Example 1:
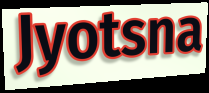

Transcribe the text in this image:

Jyotsna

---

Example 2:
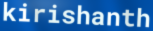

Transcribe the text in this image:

kirishanth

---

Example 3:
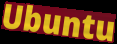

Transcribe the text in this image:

Ubuntu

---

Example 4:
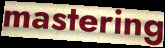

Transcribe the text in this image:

mastering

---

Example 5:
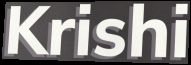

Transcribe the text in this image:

Krishi